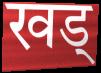
खड्